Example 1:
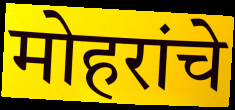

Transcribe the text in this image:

मोहरांचे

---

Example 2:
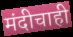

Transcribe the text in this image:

मंदीचाही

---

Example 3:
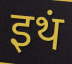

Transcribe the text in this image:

इथं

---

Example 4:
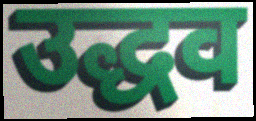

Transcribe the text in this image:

उद्धव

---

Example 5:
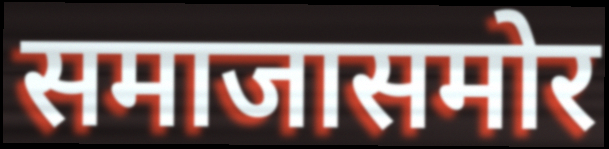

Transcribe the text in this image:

समाजासमोर